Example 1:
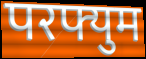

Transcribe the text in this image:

परफ्युम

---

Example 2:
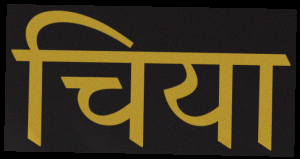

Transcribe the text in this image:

चिया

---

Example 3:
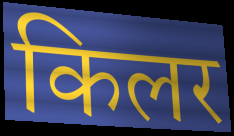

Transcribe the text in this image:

किलर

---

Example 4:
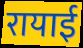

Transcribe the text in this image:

रायाई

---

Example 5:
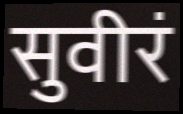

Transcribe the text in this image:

सुवीरं